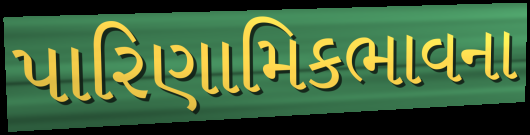
પારિણામિકભાવના